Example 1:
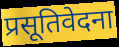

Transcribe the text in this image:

प्रसूतिवेदना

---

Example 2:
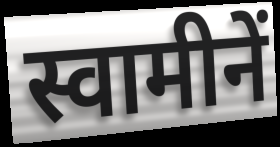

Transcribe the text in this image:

स्वामीनें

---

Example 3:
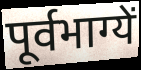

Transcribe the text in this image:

पूर्वभाग्यें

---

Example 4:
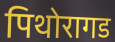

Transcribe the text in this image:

पिथोरागड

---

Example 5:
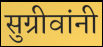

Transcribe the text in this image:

सुग्रीवांनी